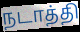
நடாத்தி